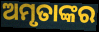
ଅମୃତାଙ୍କର